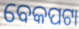
ବେକପଟା